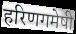
हरिणगमेषी